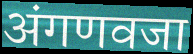
अंगणवजा